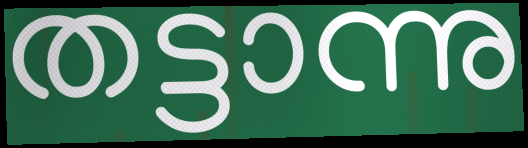
തട്ടാന്നു